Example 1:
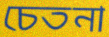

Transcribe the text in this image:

চেতনা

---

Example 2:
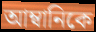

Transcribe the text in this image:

আম্বানিকে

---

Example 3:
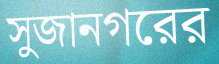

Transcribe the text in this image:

সুজানগরের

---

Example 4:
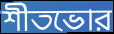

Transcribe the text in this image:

শীতভোর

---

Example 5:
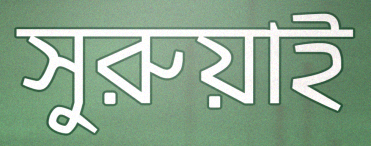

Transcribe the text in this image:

সুরুয়াই